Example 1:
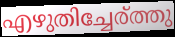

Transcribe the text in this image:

എഴുതിച്ചേര്ത്തു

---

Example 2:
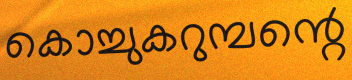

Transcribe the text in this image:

കൊച്ചുകറുമ്പന്റെ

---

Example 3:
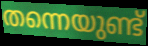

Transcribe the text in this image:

തന്നെയുണ്ട്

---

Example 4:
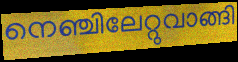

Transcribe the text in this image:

നെഞ്ചിലേറ്റുവാങ്ങി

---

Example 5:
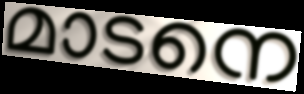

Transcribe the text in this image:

മാടനെ